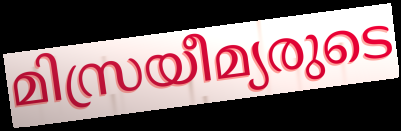
മിസ്രയീമ്യരുടെ